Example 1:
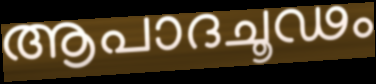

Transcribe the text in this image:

ആപാദചൂഢം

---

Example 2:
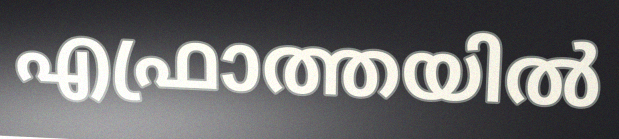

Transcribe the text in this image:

എഫ്രാത്തയിൽ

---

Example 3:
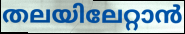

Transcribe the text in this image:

തലയിലേറ്റാൻ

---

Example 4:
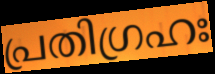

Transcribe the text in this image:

പ്രതിഗ്രഹഃ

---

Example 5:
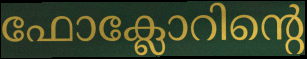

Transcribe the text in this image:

ഫോക്ലോറിന്റെ